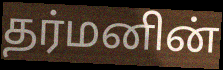
தர்மனின்